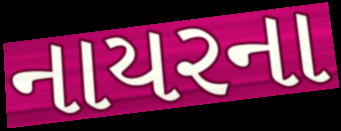
નાયરના